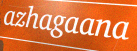
azhagaana